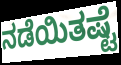
ನಡೆಯಿತಷ್ಟೆ